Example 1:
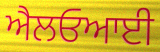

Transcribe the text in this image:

ਐਲਓਆਈ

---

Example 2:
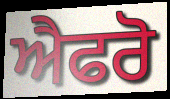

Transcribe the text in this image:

ਐਫਰੋ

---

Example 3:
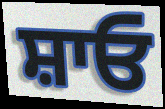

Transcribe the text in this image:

ਸ਼ਾਓ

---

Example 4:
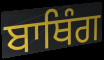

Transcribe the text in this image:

ਬਾਥਿੰਗ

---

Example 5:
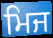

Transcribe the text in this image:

ਮਿਜ